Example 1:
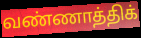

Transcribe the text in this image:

வண்ணாத்திக்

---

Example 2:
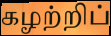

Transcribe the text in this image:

கழற்றிப்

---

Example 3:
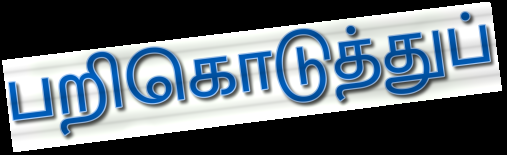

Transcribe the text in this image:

பறிகொடுத்துப்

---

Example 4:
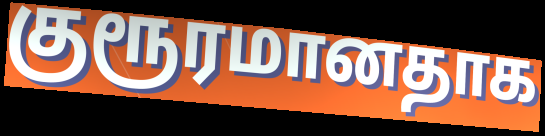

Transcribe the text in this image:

குரூரமானதாக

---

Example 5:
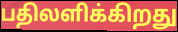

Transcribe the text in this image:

பதிலளிக்கிறது